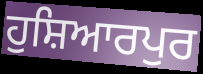
ਹੁਸ਼ਿਆਰਪੁਰ